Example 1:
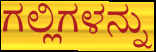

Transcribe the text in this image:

ಗಲ್ಲಿಗಳನ್ನು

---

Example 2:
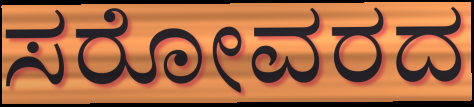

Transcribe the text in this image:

ಸರೋವರದ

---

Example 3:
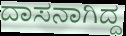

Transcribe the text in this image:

ದಾಸನಾಗಿದ್ದ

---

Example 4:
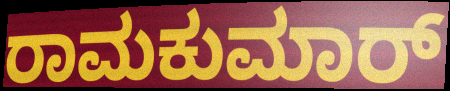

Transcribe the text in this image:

ರಾಮಕುಮಾರ್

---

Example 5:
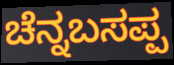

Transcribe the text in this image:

ಚೆನ್ನಬಸಪ್ಪ